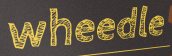
wheedle